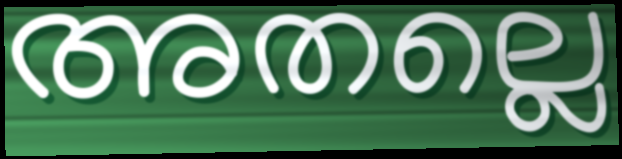
അതല്ലെ